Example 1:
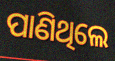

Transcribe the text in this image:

ପାଣିଥିଲେ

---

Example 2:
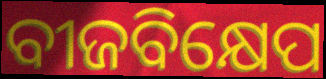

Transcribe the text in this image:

ବୀଜବିକ୍ଷେପ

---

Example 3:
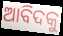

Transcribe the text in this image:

ଆବିଦକୁ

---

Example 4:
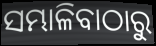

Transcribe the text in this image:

ସମ୍ଭାଳିବାଠାରୁ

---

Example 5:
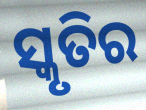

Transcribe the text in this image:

ସ୍କୃତିର